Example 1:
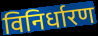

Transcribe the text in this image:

विनिर्धारण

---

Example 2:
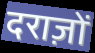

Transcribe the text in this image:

दराज़ों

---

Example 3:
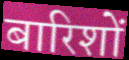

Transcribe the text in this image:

बारिशों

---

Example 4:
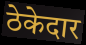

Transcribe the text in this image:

ठेकेदार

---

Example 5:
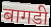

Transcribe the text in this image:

बागडी